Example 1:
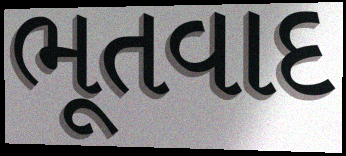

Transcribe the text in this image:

ભૂતવાદ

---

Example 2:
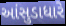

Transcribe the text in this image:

આંસુડાધારે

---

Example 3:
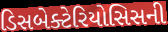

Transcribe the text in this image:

ડિસબેક્ટેરિયોસિસની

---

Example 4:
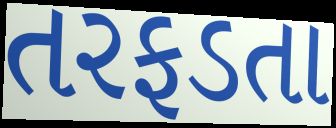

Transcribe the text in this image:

તરફડતા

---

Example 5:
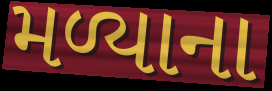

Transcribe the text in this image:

મળ્યાના